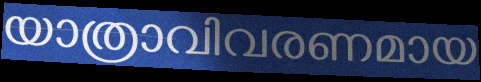
യാത്രാവിവരണമായ